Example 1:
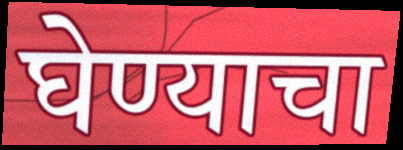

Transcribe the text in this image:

घेण्याचा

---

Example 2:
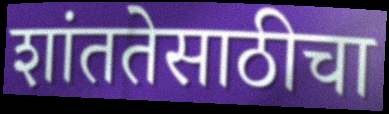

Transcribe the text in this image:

शांततेसाठीचा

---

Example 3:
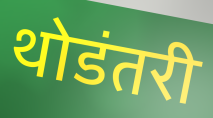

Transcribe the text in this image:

थोडंतरी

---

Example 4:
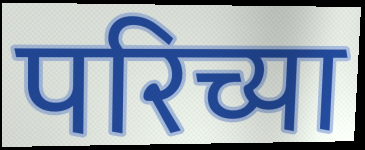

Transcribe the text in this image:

परिच्या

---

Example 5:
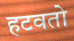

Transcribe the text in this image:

हटवतो